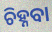
ଚିହ୍ନବା